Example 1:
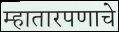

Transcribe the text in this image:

म्हातारपणाचे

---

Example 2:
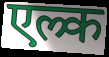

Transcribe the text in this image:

एल्क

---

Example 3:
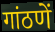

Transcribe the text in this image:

गांठणें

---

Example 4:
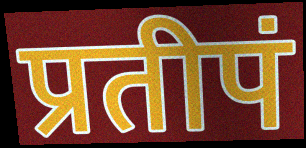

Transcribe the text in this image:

प्रतीपं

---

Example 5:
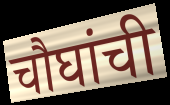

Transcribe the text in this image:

चौघांची